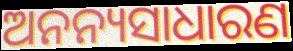
ଅନନ୍ୟସାଧାରଣ